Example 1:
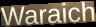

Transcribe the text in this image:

Waraich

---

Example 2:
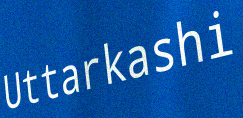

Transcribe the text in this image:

Uttarkashi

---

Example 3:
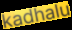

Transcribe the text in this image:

kadhalu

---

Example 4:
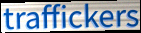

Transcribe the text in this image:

traffickers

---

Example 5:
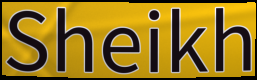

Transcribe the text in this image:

Sheikh